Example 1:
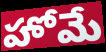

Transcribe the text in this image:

హోమే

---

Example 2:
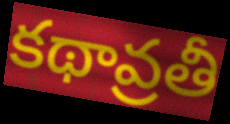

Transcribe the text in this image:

కథావ్రతీ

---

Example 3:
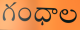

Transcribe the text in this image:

గంధాల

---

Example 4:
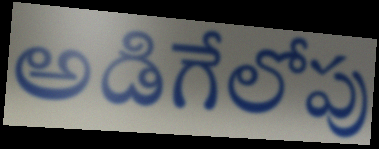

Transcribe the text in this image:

అడిగేలోపు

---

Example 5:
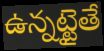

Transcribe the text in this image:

ఉన్నట్టైతే